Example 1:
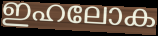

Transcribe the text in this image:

ഇഹലോക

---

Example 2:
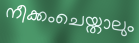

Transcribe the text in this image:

നീക്കംചെയ്താലും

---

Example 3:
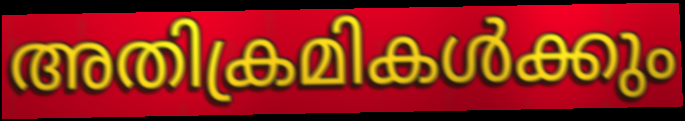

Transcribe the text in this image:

അതിക്രമികൾക്കും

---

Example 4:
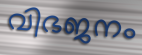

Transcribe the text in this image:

വിഭജനം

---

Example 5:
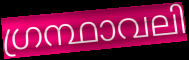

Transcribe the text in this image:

ഗ്രന്ഥാവലി